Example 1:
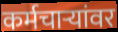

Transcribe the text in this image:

कर्मचार्‍यांवर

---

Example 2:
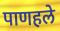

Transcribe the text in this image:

पाणहले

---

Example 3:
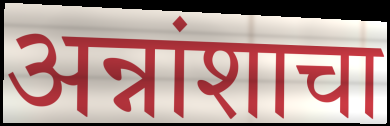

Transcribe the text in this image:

अन्नांशाचा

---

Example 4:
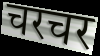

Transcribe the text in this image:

चरचर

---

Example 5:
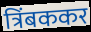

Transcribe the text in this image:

त्रिंबककर